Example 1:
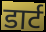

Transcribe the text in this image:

डार्ट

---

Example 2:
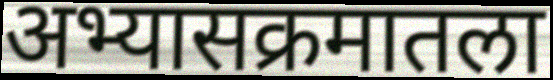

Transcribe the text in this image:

अभ्यासक्रमातला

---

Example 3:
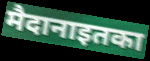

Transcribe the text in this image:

मैदानाइतका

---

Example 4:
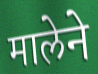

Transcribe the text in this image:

मालेने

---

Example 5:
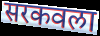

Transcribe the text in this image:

सरकवला